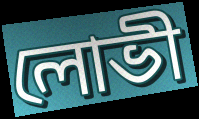
লোভী